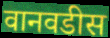
वानवडीस